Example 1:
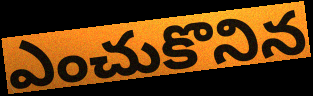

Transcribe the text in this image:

ఎంచుకొనిన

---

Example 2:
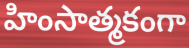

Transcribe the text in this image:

హింసాత్మకంగా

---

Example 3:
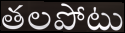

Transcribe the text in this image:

తలపోటు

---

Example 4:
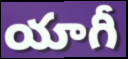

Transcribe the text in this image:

యాగీ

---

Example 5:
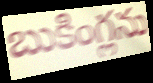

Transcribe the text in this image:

బుకింగ్లను